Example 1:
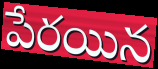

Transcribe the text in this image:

పేరయిన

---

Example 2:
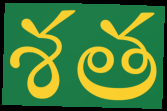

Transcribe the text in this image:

శత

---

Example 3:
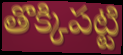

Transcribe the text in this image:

తొక్కిపట్టి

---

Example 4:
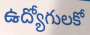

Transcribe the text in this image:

ఉద్యోగులకో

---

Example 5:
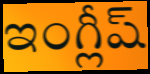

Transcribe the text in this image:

ఇంగ్లీష్